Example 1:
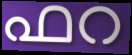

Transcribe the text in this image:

ഫറ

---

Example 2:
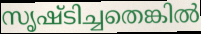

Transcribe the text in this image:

സൃഷ്ടിച്ചതെങ്കിൽ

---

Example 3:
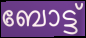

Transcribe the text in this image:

ബോട്ട്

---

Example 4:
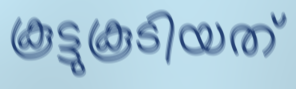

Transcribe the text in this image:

കൂട്ടുകൂടിയത്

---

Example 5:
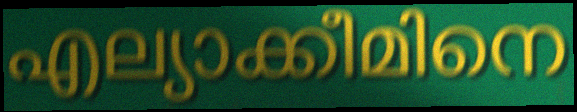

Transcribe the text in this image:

എല്യാക്കീമിനെ